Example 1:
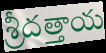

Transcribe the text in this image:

శ్రీదత్తాయ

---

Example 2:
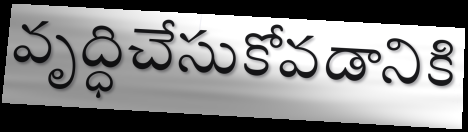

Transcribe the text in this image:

వృద్ధిచేసుకోవడానికి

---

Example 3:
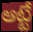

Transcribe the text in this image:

ఆట్టే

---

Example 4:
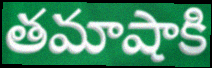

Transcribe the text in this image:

తమాషాకి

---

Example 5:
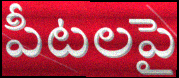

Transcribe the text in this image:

పీటలపై